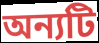
অন্যটি